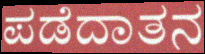
ಪಡೆದಾತನ